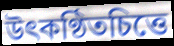
উৎকণ্ঠিতচিত্তে